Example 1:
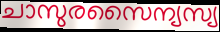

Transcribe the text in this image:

ചാസുരസൈന്യസ്യ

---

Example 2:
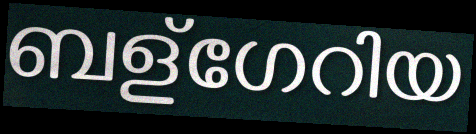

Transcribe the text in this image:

ബള്ഗേറിയ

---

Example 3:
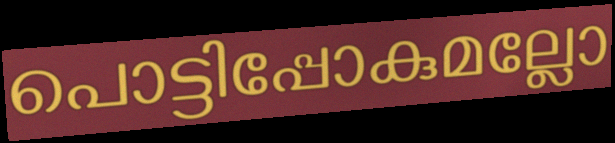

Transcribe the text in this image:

പൊട്ടിപ്പോകുമല്ലോ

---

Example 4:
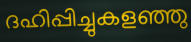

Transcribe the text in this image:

ദഹിപ്പിച്ചുകളഞ്ഞു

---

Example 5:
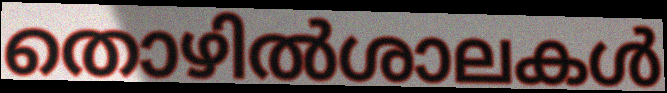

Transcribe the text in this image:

തൊഴിൽശാലകൾ